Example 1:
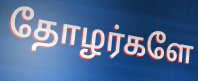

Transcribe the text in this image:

தோழர்களே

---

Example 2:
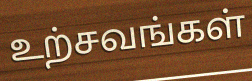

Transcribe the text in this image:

உற்சவங்கள்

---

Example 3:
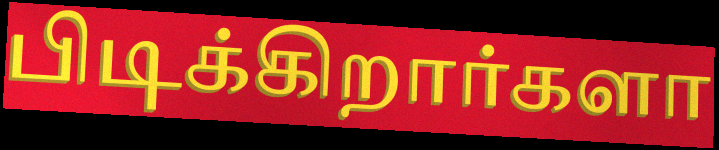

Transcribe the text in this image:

பிடிக்கிறார்களா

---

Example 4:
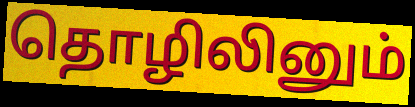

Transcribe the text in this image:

தொழிலினும்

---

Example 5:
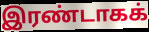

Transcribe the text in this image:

இரண்டாகக்